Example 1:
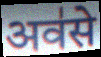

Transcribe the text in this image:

अव॑से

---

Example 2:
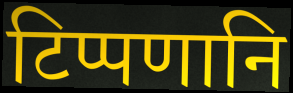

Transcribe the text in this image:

टिप्पणानि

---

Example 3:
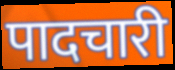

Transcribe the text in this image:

पादचारी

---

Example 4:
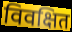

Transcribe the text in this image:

विवक्षित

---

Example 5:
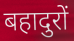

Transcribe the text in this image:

बहादुरों